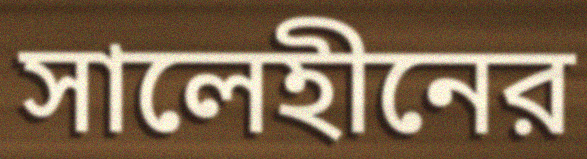
সালেহীনের